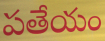
పతేయం